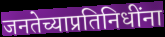
जनतेच्याप्रतिनिधींना